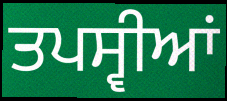
ਤਪਸ੍ਵੀਆਂ